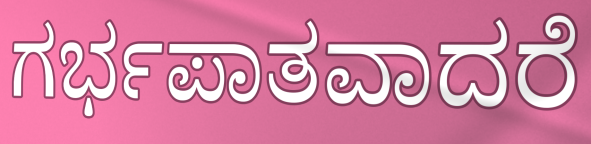
ಗರ್ಭಪಾತವಾದರೆ